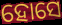
ହୋସେ